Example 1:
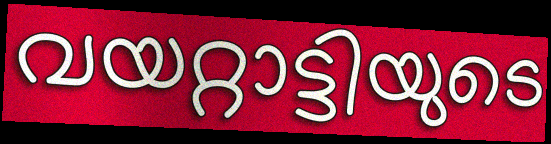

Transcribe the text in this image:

വയറ്റാട്ടിയുടെ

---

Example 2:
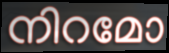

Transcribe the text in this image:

നിറമോ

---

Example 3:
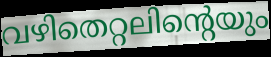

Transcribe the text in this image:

വഴിതെറ്റലിന്റെയും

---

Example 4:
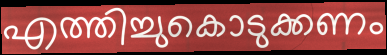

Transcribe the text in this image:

എത്തിച്ചുകൊടുക്കണം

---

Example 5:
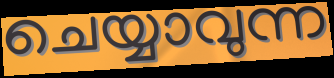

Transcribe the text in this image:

ചെയ്യാവുന്ന